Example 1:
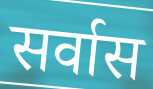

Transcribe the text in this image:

सर्वास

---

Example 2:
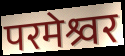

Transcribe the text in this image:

परमेश्र्वर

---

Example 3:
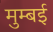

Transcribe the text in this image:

मुम्बई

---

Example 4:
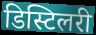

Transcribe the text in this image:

डिस्टिलरी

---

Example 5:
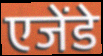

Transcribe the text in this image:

एजेंडे